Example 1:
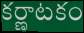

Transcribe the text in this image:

కర్ణాటకం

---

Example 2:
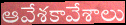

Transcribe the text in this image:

ఆవేశకావేశాలు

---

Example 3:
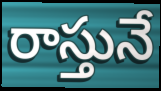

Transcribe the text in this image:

రాస్తునే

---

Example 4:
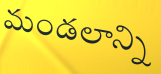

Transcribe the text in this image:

మండలాన్ని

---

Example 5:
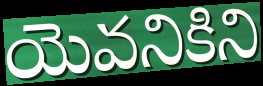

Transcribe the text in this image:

యెవనికిని